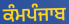
ਕੰਮਪੰਜਾਬ